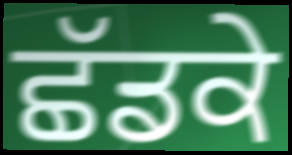
ਛੱਡਕੇ